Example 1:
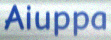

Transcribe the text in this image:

Aiuppa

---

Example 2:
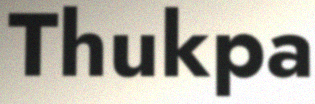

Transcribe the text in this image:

Thukpa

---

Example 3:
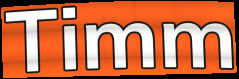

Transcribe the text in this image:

Timm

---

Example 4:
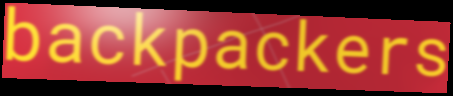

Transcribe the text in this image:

backpackers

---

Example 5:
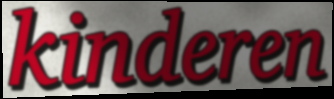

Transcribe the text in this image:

kinderen